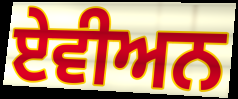
ਏਵੀਅਨ